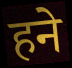
हने